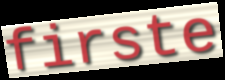
firste